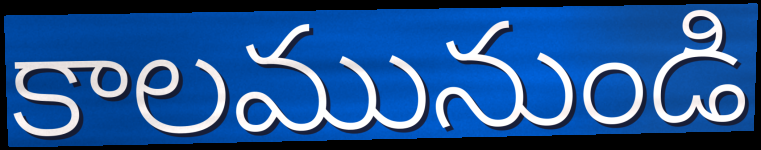
కాలమునుండి